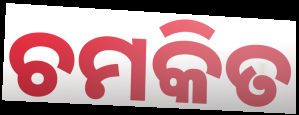
ଚମକିତ